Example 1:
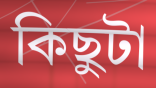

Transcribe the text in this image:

কিছুটা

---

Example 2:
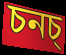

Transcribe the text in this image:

চনচ্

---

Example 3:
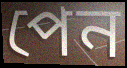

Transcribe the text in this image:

পেন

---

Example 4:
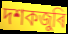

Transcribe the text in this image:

দশকজুৰি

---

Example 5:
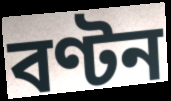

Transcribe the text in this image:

বণ্টন